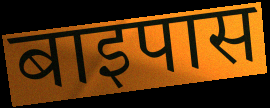
बाइपास